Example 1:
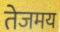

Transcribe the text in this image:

तेजमय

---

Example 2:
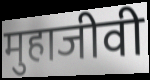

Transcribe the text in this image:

मुहाजीवी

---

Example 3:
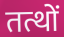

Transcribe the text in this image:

तत्थों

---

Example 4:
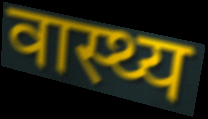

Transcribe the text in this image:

वास्थ्य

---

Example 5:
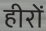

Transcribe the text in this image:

हीरों